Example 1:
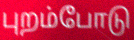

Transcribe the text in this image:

புறம்போடு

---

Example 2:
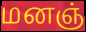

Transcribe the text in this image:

மனஞ்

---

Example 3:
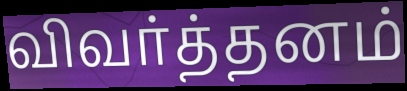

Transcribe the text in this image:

விவர்த்தனம்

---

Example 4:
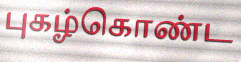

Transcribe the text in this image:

புகழ்கொண்ட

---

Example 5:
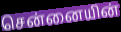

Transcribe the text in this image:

சென்னையின்